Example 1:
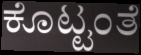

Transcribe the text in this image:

ಕೊಟ್ಟಂತೆ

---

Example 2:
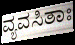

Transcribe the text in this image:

ವ್ಯವಸಿತಾಃ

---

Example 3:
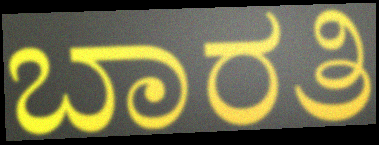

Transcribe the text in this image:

ಬಾರತಿ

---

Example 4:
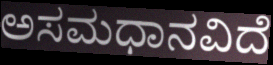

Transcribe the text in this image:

ಅಸಮಧಾನವಿದೆ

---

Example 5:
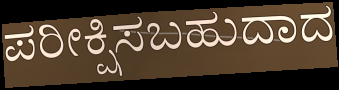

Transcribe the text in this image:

ಪರೀಕ್ಷಿಸಬಹುದಾದ